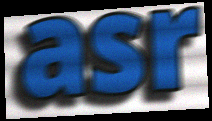
asr